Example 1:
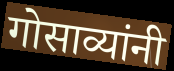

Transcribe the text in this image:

गोसाव्यांनी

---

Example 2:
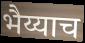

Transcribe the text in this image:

भैय्याच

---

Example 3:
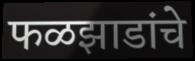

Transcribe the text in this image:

फळझाडांचे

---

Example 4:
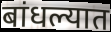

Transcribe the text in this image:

बांधल्यात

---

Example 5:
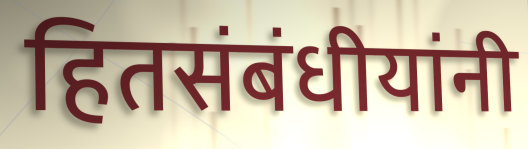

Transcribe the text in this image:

हितसंबंधीयांनी